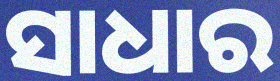
ସାଧାର